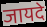
जायदे